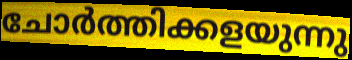
ചോർത്തിക്കളയുന്നു